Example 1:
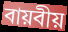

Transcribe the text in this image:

বায়বীয়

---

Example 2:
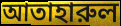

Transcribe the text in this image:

আতাহারুল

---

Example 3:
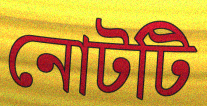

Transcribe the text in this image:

নোটটি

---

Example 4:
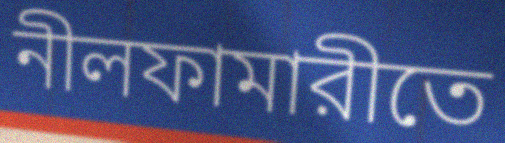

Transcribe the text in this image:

নীলফামারীতে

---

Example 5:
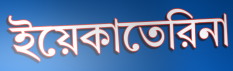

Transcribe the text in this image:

ইয়েকাতেরিনা